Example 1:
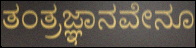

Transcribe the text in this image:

ತಂತ್ರಜ್ಞಾನವೇನೂ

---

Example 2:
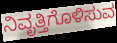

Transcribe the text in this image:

ನಿವೃತ್ತಿಗೊಳಿಸುವ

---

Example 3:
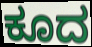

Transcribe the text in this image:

ಕೂದ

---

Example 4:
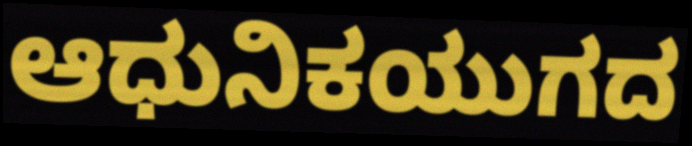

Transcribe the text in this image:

ಆಧುನಿಕಯುಗದ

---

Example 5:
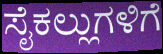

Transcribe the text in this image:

ಸೈಕಲ್ಲುಗಳಿಗೆ